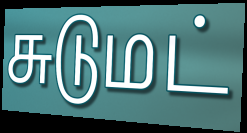
சுடுமட்